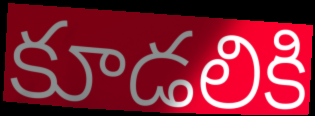
కూడలికి